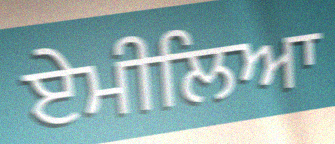
ਏਮੀਲਿਆ